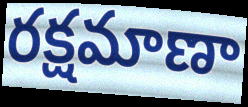
రక్షమాణా